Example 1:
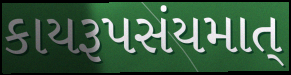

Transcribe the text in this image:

કાયરૂપસંયમાત્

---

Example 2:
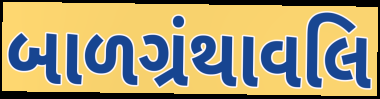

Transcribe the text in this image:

બાળગ્રંથાવલિ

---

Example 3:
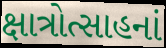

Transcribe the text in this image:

ક્ષાત્રોત્સાહનાં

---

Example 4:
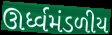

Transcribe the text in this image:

ઊર્ધ્વમંડળીય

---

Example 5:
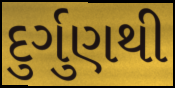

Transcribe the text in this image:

દુર્ગુણથી